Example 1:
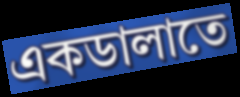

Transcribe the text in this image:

একডালাতে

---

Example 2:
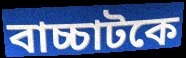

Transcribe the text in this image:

বাচ্চাটকে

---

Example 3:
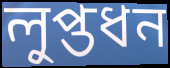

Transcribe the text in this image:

লুপ্তধন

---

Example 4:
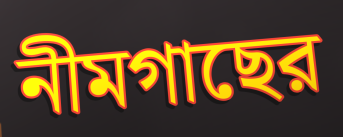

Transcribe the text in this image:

নীমগাছের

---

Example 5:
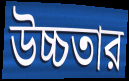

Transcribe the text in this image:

উচ্চতার